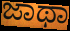
ಜಾಥಾ